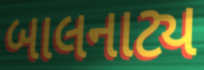
બાલનાટ્ય